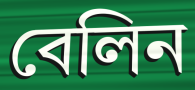
বেলিন